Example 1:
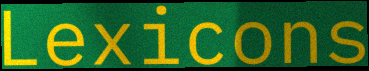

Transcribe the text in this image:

Lexicons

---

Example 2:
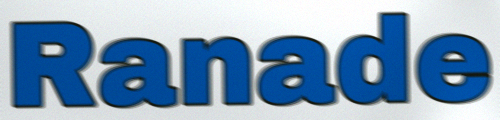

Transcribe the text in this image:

Ranade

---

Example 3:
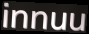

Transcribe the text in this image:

innuu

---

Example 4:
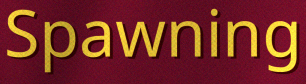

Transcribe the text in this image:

Spawning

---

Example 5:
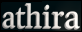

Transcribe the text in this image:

athira